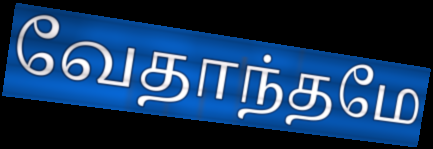
வேதாந்தமே